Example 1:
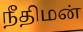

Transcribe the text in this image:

நீதிமன்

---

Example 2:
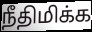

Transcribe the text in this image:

நீதிமிக்க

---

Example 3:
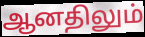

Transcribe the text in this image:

ஆனதிலும்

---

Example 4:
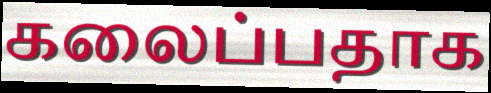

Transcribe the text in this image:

கலைப்பதாக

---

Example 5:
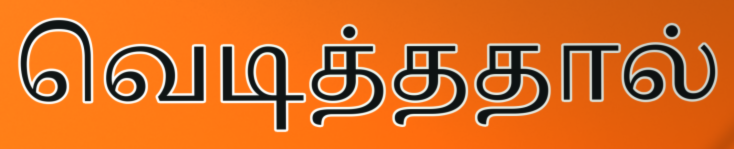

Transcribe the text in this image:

வெடித்ததால்